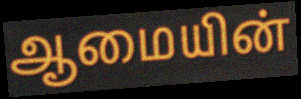
ஆமையின்